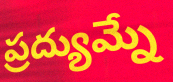
ప్రద్యుమ్నే